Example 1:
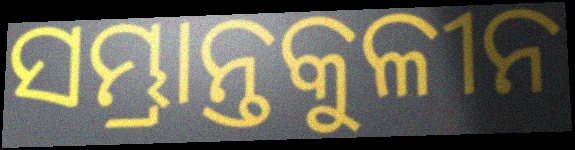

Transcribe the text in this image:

ସମ୍ଭ୍ରାନ୍ତକୁଳୀନ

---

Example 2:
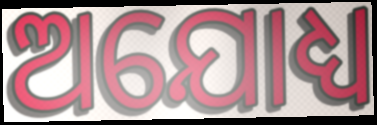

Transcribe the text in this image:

ଅଯୋଧ୍ୟ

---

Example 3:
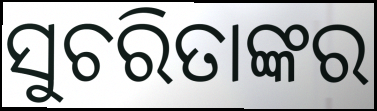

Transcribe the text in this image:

ସୁଚରିତାଙ୍କର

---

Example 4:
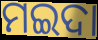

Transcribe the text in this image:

ମଇଦା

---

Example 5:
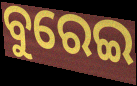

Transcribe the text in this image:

ବୁରେଇ